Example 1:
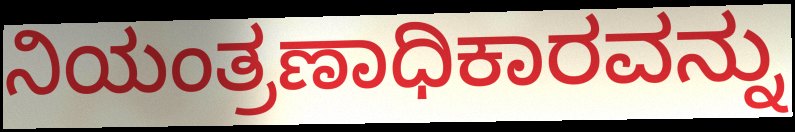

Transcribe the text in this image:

ನಿಯಂತ್ರಣಾಧಿಕಾರವನ್ನು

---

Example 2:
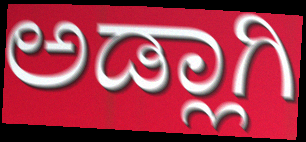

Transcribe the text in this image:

ಅಡ್ಲಾಗಿ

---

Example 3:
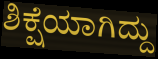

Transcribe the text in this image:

ಶಿಕ್ಷೆಯಾಗಿದ್ದು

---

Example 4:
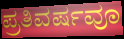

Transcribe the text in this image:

ಪ್ರತಿವರ್ಷವೂ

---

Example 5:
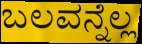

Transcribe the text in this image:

ಬಲವನ್ನೆಲ್ಲ